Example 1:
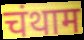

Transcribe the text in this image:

चंथाम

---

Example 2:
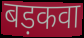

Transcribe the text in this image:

बड़कवा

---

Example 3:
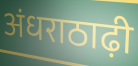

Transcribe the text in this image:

अंधराठाढ़ी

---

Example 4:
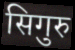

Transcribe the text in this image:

सिगुरु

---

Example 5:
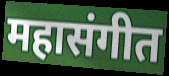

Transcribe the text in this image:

महासंगीत